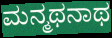
ಮನ್ಮಥನಾಥ